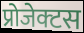
प्रोजेक्‍टस